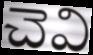
చెవి